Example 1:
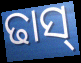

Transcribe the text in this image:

ଢାସ୍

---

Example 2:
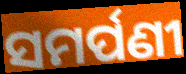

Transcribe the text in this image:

ସମର୍ପଣୀ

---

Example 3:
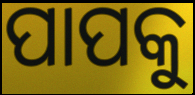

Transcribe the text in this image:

ପାପକୁ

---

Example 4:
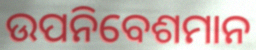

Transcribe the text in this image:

ଉପନିବେଶମାନ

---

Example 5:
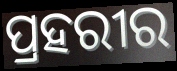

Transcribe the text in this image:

ପ୍ରହରୀର